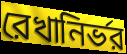
রেখানির্ভর